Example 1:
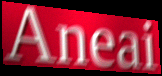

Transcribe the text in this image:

Aneai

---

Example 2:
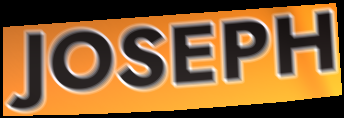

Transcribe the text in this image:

JOSEPH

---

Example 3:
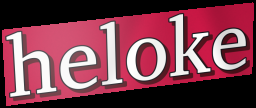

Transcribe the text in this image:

heloke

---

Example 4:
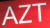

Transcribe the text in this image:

AZT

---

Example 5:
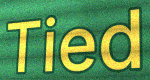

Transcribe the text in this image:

Tied